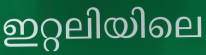
ഇറ്റലിയിലെ